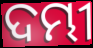
ଦମ୍ଭୀ